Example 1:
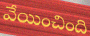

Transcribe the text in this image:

వేయించింది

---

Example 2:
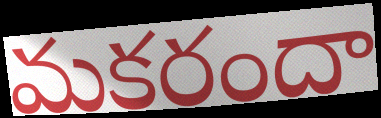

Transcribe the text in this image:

మకరందా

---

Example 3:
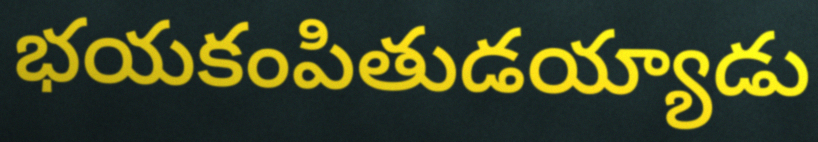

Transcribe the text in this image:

భయకంపితుడయ్యాడు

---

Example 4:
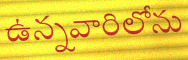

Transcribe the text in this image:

ఉన్నవారిలోను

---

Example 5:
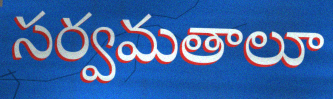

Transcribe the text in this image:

సర్వమతాలూ